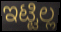
ಇಟ್ಟಿಲ್ಲ